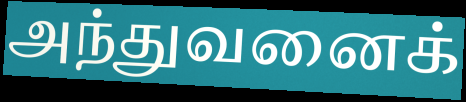
அந்துவனைக்